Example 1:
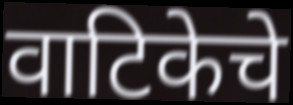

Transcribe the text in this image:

वाटिकेचे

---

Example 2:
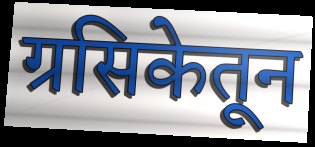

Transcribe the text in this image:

ग्रसिकेतून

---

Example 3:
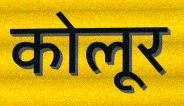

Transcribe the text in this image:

कोलूर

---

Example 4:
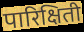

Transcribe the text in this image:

पारिक्षिती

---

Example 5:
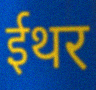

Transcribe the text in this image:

ईथर